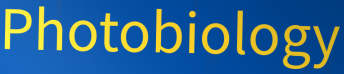
Photobiology